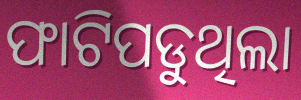
ଫାଟିପଡୁଥିଲା